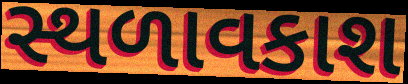
સ્થળાવકાશ